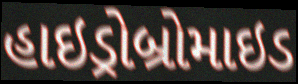
હાઇડ્રોબ્રોમાઇડ